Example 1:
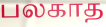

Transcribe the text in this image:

பலகாத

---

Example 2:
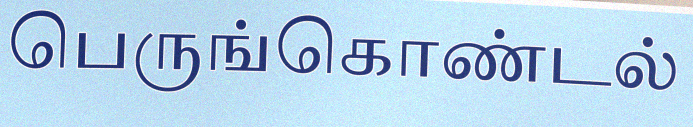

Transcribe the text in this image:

பெருங்கொண்டல்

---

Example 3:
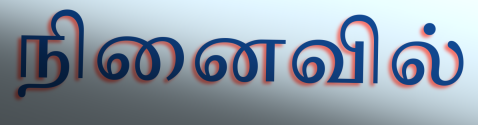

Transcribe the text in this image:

நினைவில்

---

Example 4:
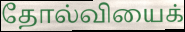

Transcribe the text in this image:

தோல்வியைக்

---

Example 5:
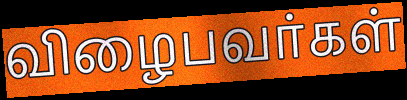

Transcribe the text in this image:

விழைபவர்கள்